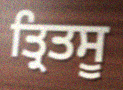
ਤ੍ਰਿਤਸੂ